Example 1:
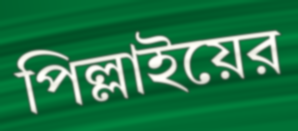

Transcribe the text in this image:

পিল্লাইয়ের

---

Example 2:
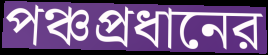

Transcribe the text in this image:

পঞ্চপ্রধানের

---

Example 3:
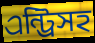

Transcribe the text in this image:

এন্ট্রিসহ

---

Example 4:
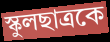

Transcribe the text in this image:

স্কুলছাত্রকে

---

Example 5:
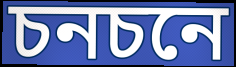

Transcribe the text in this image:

চনচনে